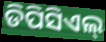
ଡିପିସିଏଲ୍